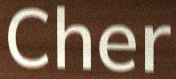
Cher